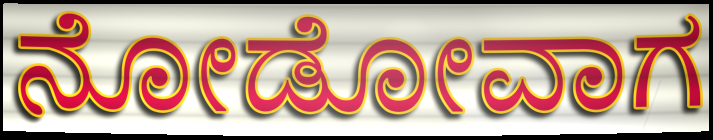
ನೋಡೋವಾಗ